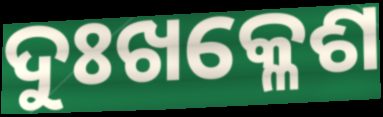
ଦୁଃଖକ୍ଳେଶ